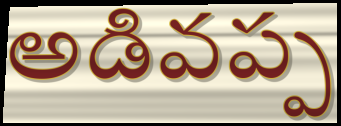
అడివప్ప